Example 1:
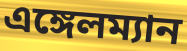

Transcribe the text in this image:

এঙ্গেলম্যান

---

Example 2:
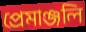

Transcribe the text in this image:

প্রেমাঞ্জলি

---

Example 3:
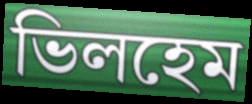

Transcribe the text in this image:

ভিলহেম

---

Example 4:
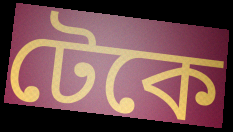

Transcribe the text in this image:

টেকে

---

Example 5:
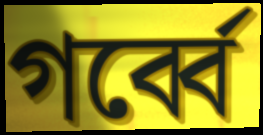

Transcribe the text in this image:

গর্ব্বে